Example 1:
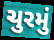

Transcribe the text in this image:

ચુરમું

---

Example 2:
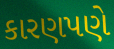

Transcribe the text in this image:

કારણપણે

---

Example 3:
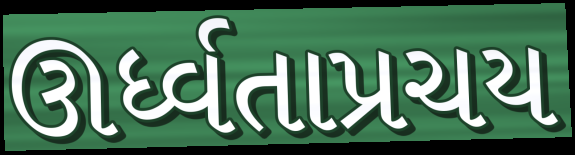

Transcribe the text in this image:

ઊર્ધ્વતાપ્રચય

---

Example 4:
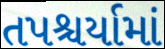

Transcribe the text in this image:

તપશ્ચર્યામાં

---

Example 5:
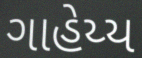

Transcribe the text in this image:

ગાહેય્ય